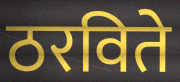
ठरविते